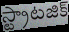
స్ట్రాటజిక్